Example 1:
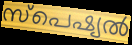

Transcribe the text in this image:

സ്പെഷ്യൽ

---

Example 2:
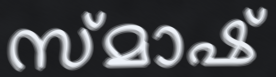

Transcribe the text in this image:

സ്മാഷ്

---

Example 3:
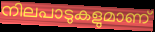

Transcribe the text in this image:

നിലപാടുകളുമാണ്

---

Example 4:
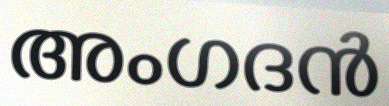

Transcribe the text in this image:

അംഗദൻ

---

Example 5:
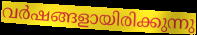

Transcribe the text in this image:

വർഷങ്ങളായിരിക്കുന്നു